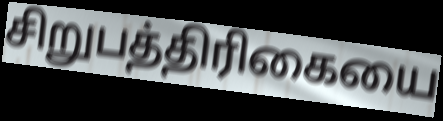
சிறுபத்திரிகையை